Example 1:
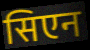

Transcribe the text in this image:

सिएन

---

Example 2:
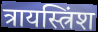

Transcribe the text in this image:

त्रायस्त्रिंश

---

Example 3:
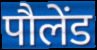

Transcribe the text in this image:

पौलेंड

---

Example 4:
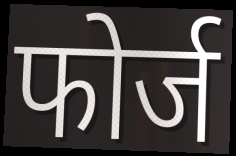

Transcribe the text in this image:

फोर्ज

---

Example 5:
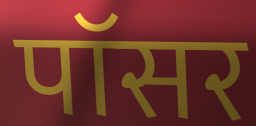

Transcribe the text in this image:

पॉसर